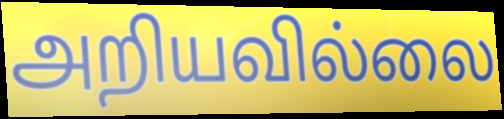
அறியவில்லை